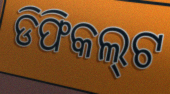
ଡିଫିକଲ୍‌ଟ